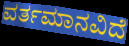
ವರ್ತಮಾನವಿದೆ